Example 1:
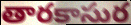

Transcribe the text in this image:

తారకాసుర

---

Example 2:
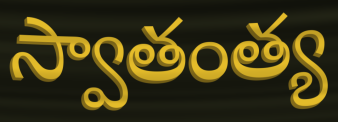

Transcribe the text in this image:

స్వాతంత్య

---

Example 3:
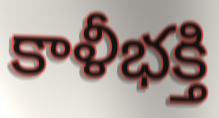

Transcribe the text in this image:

కాళీభక్తి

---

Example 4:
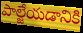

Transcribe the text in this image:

పాల్జేయడానికి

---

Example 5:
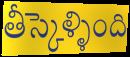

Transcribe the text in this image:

తీస్కెళ్ళింది